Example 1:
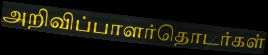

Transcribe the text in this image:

அறிவிப்பாளர்தொடர்கள்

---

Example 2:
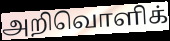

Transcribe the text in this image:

அறிவொளிக்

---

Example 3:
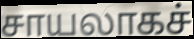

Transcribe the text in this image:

சாயலாகச்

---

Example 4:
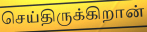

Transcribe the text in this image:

செய்திருக்கிறான்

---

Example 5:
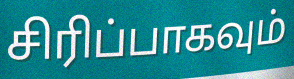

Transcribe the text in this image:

சிரிப்பாகவும்